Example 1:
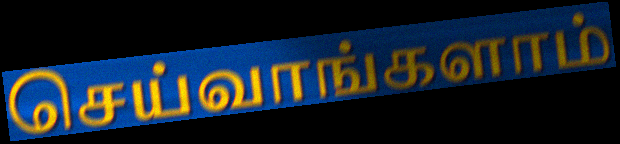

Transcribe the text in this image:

செய்வாங்களாம்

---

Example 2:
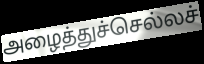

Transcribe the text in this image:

அழைத்துச்செல்லச்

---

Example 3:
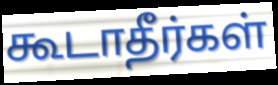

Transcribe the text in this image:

கூடாதீர்கள்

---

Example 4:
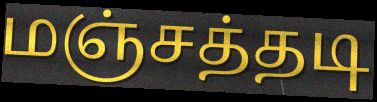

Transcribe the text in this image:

மஞ்சத்தடி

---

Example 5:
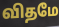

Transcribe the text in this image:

விதமே